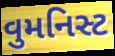
વુમનિસ્ટ